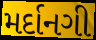
મર્દાનગી